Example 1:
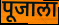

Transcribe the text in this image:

पूजाला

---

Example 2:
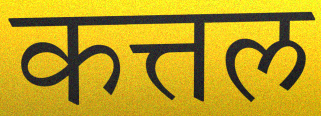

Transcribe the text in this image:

कत्तल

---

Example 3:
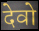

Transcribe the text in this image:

देवो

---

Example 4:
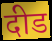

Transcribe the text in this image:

दीड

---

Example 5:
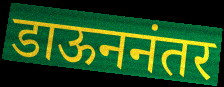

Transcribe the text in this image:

डाऊननंतर